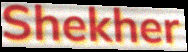
Shekher